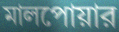
মালপোয়ার